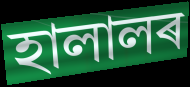
হালালৰ